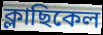
ক্লাছিকেল